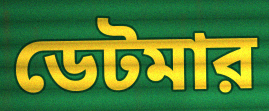
ডেটমার